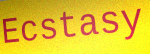
Ecstasy